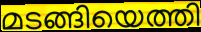
മടങ്ങിയെത്തി